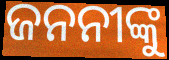
ଜନନୀଙ୍କୁ